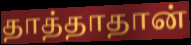
தாத்தாதான்